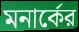
মনার্কের